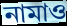
নামাও